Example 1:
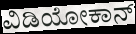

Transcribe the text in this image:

ವಿಡಿಯೋಕಾನ್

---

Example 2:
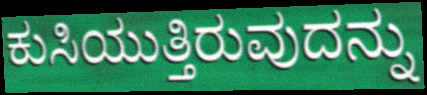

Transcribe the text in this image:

ಕುಸಿಯುತ್ತಿರುವುದನ್ನು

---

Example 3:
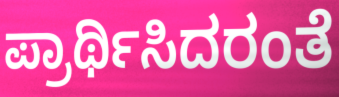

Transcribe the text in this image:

ಪ್ರಾರ್ಥಿಸಿದರಂತೆ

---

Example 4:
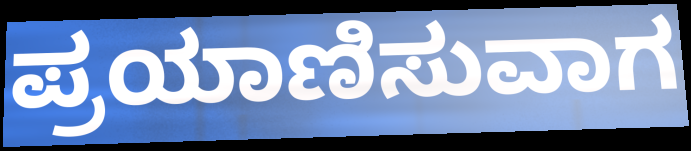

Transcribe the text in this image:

ಪ್ರಯಾಣಿಸುವಾಗ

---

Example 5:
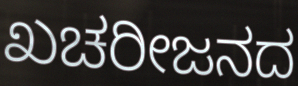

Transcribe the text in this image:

ಖಚರೀಜನದ